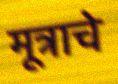
मूत्राचे